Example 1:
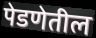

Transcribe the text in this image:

पेडणेतील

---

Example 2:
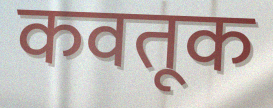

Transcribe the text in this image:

कवतूक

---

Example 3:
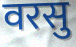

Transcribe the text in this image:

वरसु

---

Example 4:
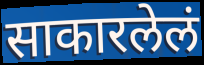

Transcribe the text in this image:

साकारलेलं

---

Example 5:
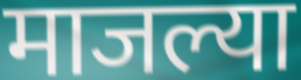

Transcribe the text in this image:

माजल्या